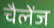
चैलेंज